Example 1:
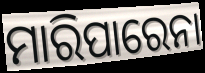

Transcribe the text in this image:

ମାରିପାରେନା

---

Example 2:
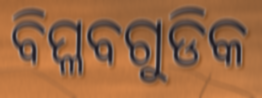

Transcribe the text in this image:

ବିପ୍ଳବଗୁଡିକ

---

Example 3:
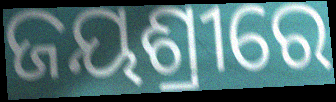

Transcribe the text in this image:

ଜୟଶ୍ରୀରେ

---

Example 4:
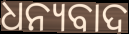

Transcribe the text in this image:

ଧନ୍ଯବାଦ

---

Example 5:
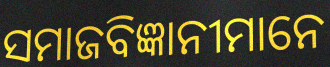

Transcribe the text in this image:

ସମାଜବିଜ୍ଞାନୀମାନେ